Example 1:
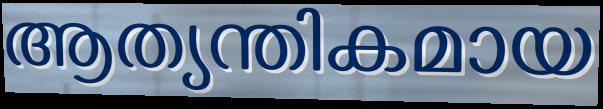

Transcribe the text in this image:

ആത്യന്തികമായ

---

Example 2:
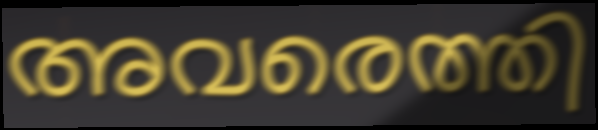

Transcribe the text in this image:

അവരെത്തി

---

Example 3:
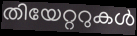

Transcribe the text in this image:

തിയേറ്ററുകൾ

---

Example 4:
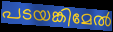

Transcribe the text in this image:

പടയങ്കിമേൽ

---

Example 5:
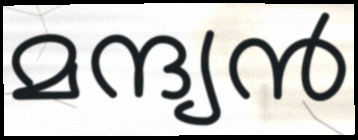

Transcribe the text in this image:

മന്ദ്യൻ